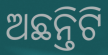
ଅଛନ୍ତିଟି